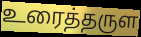
உரைத்தருள